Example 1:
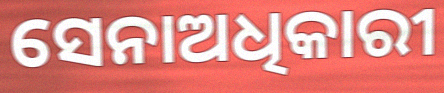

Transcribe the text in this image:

ସେନାଅଧିକାରୀ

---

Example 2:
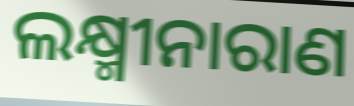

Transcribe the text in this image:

ଲକ୍ଷ୍ମୀନାରାଣ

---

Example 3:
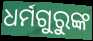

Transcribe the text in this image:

ଧର୍ମଗୁରୁଙ୍କ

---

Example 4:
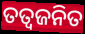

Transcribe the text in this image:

ତତ୍ଵଜନିତ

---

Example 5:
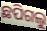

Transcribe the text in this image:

ଛପିଗଲୁ